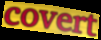
covert